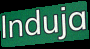
Induja